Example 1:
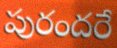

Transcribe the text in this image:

పురందరే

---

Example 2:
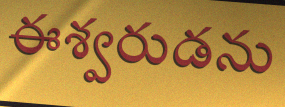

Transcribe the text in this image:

ఈశ్వరుడను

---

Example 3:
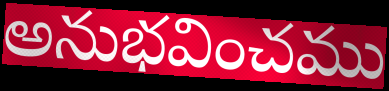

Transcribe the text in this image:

అనుభవించము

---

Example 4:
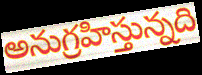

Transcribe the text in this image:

అనుగ్రహిస్తున్నది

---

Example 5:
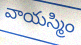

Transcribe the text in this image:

వాయస్మిం